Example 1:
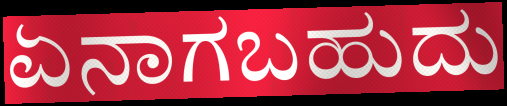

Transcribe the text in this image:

ಏನಾಗಬಹುದು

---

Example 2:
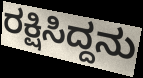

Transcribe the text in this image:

ರಕ್ಷಿಸಿದ್ದನು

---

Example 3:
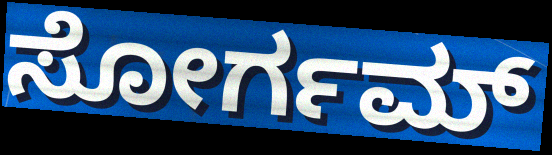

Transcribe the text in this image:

ಸೋರ್ಗಮ್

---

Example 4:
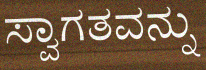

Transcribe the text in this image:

ಸ್ವಾಗತವನ್ನು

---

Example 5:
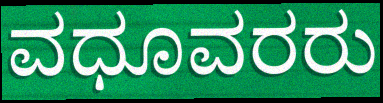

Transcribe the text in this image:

ವಧೂವರರು